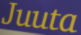
Juuta